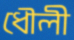
ধৌলী